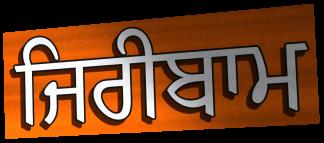
ਜਿਰੀਬਾਮ